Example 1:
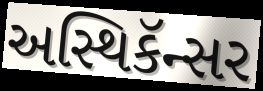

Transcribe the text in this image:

અસ્થિકૅન્સર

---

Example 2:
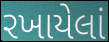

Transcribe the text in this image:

રખાયેલાં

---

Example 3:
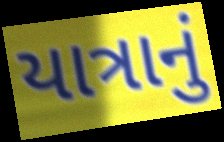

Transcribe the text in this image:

યાત્રાનું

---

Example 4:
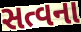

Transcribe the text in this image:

સત્વના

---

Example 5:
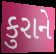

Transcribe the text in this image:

કુરાને